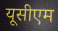
यूसीएम